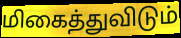
மிகைத்துவிடும்